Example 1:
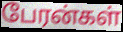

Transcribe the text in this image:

பேரன்கள்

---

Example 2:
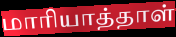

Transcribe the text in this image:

மாரியாத்தாள்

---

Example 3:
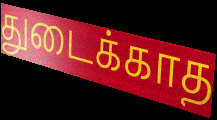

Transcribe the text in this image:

துடைக்காத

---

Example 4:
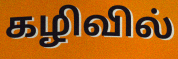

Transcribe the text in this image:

கழிவில்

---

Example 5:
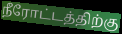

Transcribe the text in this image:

நீரோட்டத்திற்கு